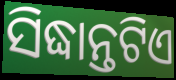
ସିଦ୍ଧାନ୍ତଟିଏ